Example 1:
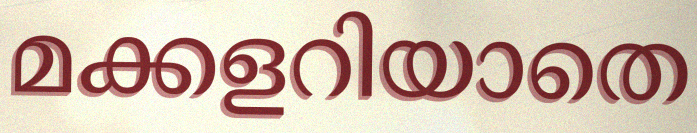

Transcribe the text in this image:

മക്കളറിയാതെ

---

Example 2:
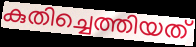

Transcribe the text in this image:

കുതിച്ചെത്തിയത്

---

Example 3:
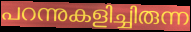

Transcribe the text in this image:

പറന്നുകളിച്ചിരുന്ന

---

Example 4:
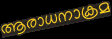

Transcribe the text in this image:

ആരാധനാക്രമ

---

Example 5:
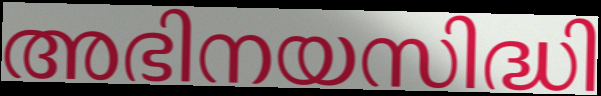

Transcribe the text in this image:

അഭിനയസിദ്ധി